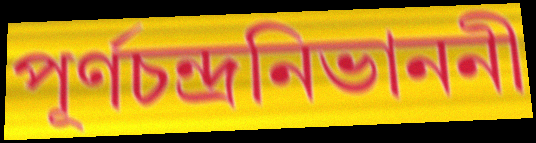
পূর্ণচন্দ্রনিভাননী